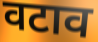
वटाव